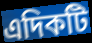
এদিকটি